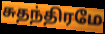
சுதந்திரமே